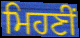
ਮਿਹਣੀਂ